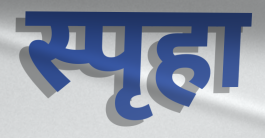
स्पृहा